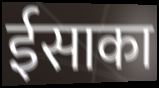
ईसाका